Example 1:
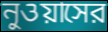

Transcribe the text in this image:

নুওয়াসের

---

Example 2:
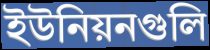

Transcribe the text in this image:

ইউনিয়নগুলি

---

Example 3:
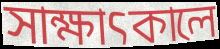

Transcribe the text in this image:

সাক্ষাৎকালে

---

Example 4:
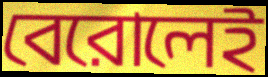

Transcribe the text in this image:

বেরোলেই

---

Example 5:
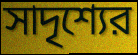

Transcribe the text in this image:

সাদৃশ্যের